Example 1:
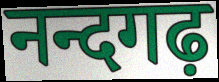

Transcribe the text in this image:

नन्दगढ़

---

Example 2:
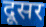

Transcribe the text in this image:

दूसर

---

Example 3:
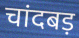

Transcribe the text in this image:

चांदबड़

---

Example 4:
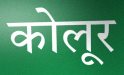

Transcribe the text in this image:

कोलूर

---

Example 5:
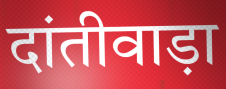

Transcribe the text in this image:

दांतीवाड़ा